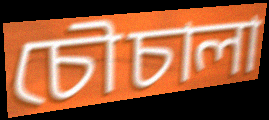
চৌচালা